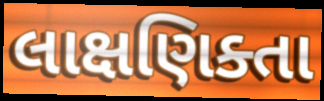
લાક્ષણિક્તા